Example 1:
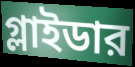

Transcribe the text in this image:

গ্লাইডার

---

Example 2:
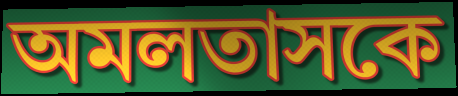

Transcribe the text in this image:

অমলতাসকে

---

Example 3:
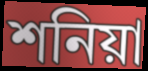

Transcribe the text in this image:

শনিয়া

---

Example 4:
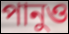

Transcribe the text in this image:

পানুও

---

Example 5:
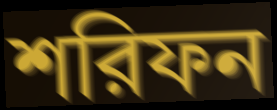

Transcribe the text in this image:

শরিফন